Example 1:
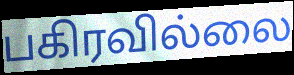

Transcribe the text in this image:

பகிரவில்லை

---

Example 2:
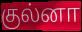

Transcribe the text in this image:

குல்னா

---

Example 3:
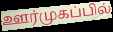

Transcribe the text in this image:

ஊர்முகப்பில்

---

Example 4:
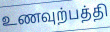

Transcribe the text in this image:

உணவுற்பத்தி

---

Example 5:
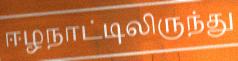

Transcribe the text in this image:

ஈழநாட்டிலிருந்து